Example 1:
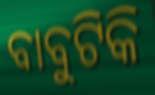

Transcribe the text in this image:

ବାବୁଟିକି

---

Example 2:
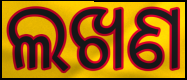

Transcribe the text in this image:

ଲଖଣ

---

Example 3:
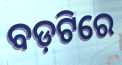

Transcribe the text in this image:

ବଡ଼ଟିରେ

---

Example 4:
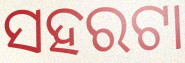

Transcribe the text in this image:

ସହରଟା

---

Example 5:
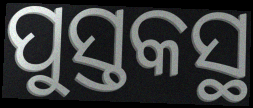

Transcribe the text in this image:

ପୁସ୍ତକସ୍ଥ